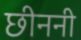
छीननी